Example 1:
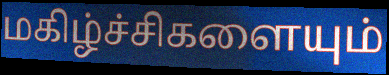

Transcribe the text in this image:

மகிழ்ச்சிகளையும்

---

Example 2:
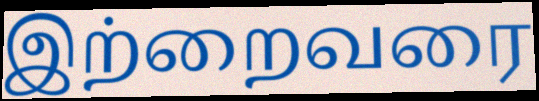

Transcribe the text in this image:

இற்றைவரை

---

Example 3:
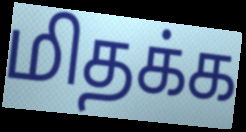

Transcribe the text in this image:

மிதக்க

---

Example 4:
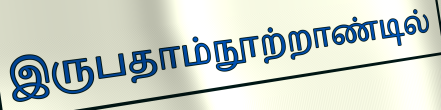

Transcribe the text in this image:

இருபதாம்நூற்றாண்டில்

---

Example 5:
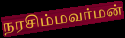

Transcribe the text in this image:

நரசிம்மவர்மன்